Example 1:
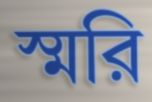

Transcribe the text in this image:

স্মরি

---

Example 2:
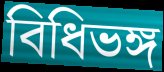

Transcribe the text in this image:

বিধিভঙ্গ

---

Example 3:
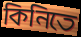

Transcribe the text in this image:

কিনিতে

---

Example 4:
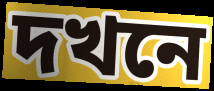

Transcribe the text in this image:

দখনে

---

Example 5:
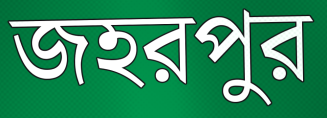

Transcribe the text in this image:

জহরপুর